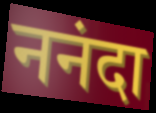
ननंदा